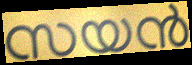
സയൻ